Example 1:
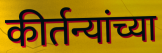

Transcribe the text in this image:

कीर्तन्यांच्या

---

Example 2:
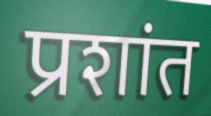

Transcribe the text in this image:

प्रशांत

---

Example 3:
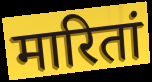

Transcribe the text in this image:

मारितां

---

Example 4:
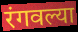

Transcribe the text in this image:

रंगवल्या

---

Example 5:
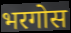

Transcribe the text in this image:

भरगोस